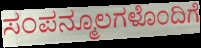
ಸಂಪನ್ಮೂಲಗಳೊಂದಿಗೆ